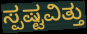
ಸ್ಪಷ್ಟವಿತ್ತು